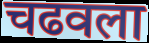
चढवला